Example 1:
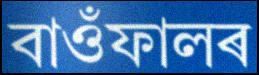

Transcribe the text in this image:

বাওঁফালৰ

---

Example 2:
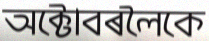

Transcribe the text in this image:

অক্টোবৰলৈকে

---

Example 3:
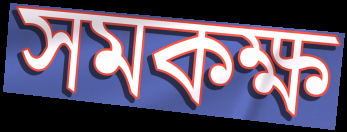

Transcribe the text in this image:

সমকক্ষ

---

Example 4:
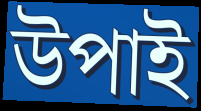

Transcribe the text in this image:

উপাই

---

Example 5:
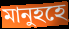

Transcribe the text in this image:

মানুহহে